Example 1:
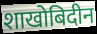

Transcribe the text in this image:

शाखोबिदीन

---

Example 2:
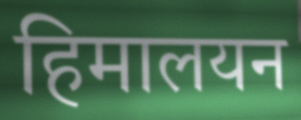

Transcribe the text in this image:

हिमालयन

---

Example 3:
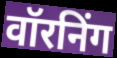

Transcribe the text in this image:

वॉरनिंग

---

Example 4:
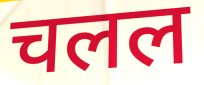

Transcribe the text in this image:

चलल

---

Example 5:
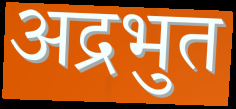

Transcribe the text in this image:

अद्रभुत